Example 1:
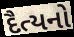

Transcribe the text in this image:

દૈત્યનો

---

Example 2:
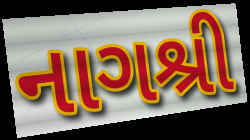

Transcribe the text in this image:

નાગશ્રી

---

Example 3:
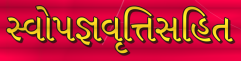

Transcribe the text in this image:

સ્વોપજ્ઞવૃત્તિસહિત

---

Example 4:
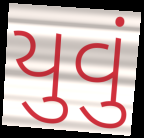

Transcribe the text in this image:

યુવું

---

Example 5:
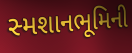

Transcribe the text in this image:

સ્મશાનભૂમિની